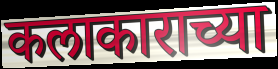
कलाकाराच्या